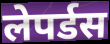
लेपर्डस